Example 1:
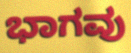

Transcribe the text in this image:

ಭಾಗವು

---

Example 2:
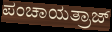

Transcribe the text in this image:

ಪಂಚಾಯತ್ರಾಜ್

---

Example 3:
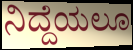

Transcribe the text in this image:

ನಿದ್ದೆಯಲೂ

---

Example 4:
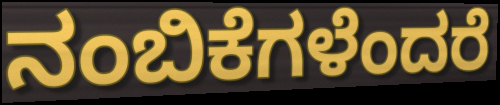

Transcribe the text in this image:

ನಂಬಿಕೆಗಳೆಂದರೆ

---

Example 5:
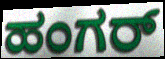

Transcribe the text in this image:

ಹಂಗರ್